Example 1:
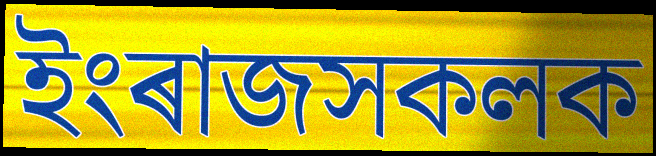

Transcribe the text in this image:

ইংৰাজসকলক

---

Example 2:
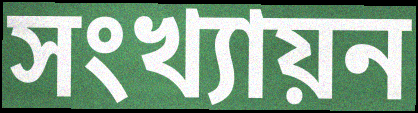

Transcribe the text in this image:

সংখ্যায়ন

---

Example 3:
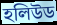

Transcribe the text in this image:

হলিউড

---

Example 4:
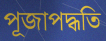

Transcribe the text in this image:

পূজাপদ্ধতি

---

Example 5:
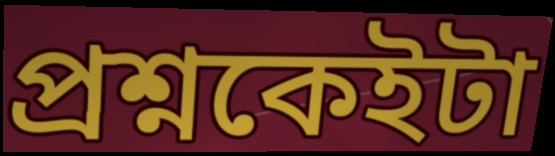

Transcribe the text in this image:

প্ৰশ্নকেইটা